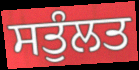
ਸਤੁੰਲਤ